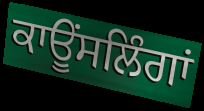
ਕਾਊਂਸਲਿੰਗਾਂ